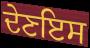
ਦੇਣਇਸ